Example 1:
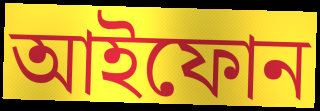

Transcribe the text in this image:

আইফোন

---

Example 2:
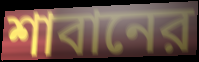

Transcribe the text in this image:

শাবানের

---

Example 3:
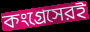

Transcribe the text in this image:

কংগ্রেসেরই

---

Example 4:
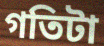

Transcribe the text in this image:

গতিটা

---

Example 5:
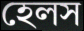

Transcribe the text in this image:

হেলস